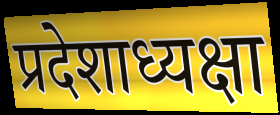
प्रदेशाध्यक्षा